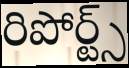
రిపోర్ట్స్